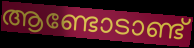
ആണ്ടോടാണ്ട്